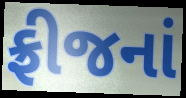
ફ્રીજનાં